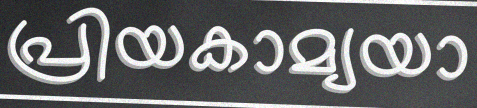
പ്രിയകാമ്യയാ